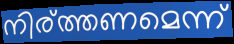
നിര്ത്തണമെന്ന്